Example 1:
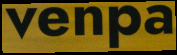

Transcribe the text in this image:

venpa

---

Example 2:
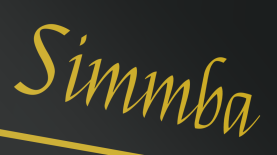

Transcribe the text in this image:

Simmba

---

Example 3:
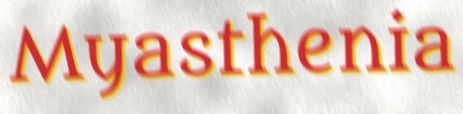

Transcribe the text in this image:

Myasthenia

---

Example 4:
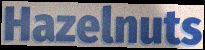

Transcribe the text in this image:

Hazelnuts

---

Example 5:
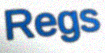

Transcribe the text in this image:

Regs